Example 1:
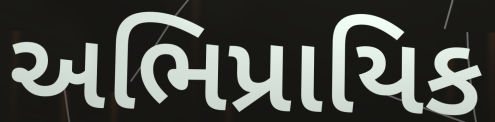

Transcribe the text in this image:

અભિપ્રાયિક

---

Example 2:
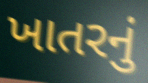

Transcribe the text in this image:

ખાતરનું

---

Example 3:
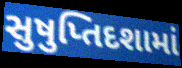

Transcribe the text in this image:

સુષુપ્તિદશામાં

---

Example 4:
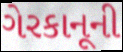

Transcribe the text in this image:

ગેરકાનૂની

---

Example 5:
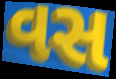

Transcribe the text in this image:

વસ